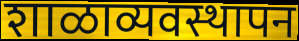
शाळाव्यवस्थापन